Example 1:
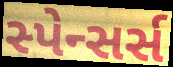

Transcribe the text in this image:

સ્પેન્સર્સ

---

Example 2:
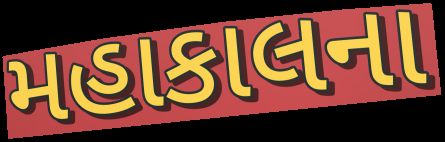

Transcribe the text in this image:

મહાકાલના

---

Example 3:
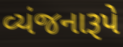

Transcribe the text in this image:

વ્યંજનારૂપે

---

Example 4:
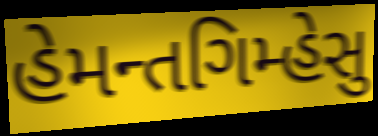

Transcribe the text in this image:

હેમન્તગિમ્હેસુ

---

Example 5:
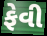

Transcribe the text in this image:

ફેવી